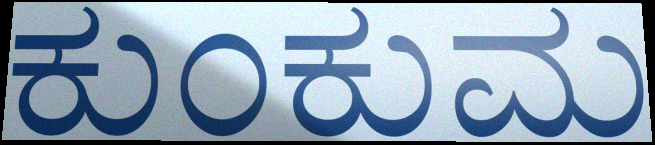
ಕುಂಕುಮ